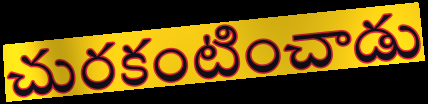
చురకంటించాడు